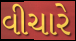
વીચારે